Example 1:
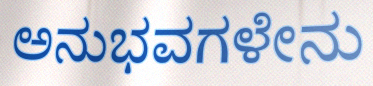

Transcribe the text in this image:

ಅನುಭವಗಳೇನು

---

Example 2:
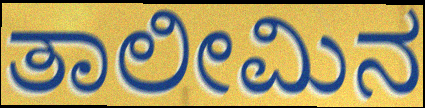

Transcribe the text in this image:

ತಾಲೀಮಿನ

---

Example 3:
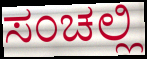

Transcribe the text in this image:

ಸಂಚಲ್ಲಿ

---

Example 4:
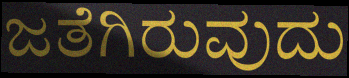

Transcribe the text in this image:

ಜತೆಗಿರುವುದು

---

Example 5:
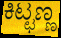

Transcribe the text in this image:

ಕಿಟ್ಟಣ್ಣ